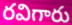
రవిగారు